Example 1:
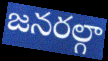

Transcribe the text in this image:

జనరల్గా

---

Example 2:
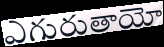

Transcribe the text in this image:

ఎగురుతాయో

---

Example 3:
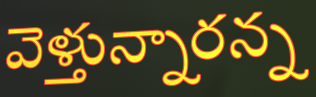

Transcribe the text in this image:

వెళ్తున్నారన్న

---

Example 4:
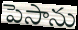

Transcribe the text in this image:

పెసాను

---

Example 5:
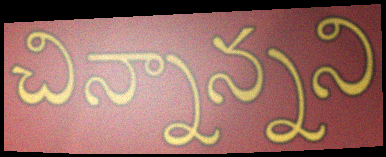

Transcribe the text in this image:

చిన్నాన్నని